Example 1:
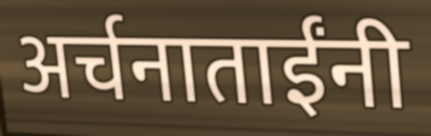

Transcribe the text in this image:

अर्चनाताईंनी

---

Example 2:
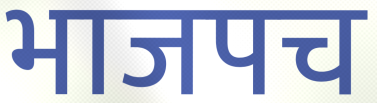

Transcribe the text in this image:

भाजपच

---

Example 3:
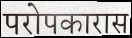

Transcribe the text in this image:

परोपकारास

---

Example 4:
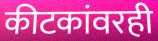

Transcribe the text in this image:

कीटकांवरही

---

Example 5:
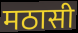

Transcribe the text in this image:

मठासी